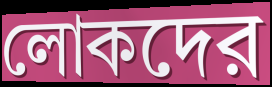
লোকদের